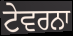
ਟੇਵਰਨਾ